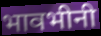
भावभीनी